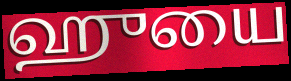
ஹுயை